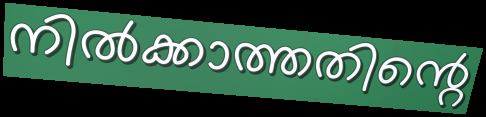
നിൽക്കാത്തതിന്റെ